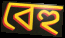
বেহু